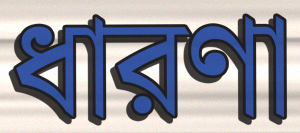
ধারণা